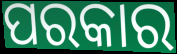
ପରକାର